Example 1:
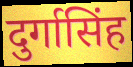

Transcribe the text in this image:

दुर्गासिंह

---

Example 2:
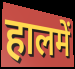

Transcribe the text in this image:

हालमें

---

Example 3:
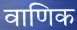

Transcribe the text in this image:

वाणिक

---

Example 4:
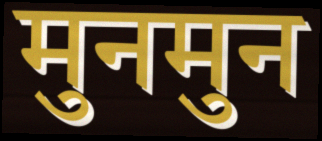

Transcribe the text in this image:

मुनमुन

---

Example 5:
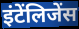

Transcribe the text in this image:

इंटेंलिजेंस